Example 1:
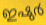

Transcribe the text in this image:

ഇഷുർ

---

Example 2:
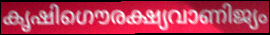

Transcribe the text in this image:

കൃഷിഗൌരക്ഷ്യവാണിജ്യം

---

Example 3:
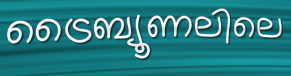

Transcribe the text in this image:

ട്രൈബ്യൂണലിലെ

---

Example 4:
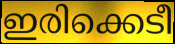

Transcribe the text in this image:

ഇരിക്കെടീ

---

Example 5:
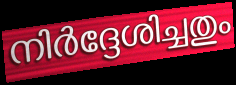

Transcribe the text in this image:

നിർദ്ദേശിച്ചതും